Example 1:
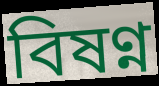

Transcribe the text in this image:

বিষণ্ন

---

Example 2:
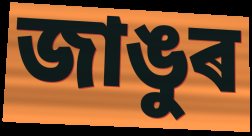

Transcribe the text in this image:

জাঙুৰ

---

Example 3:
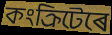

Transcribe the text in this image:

কংক্ৰিটেৰে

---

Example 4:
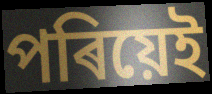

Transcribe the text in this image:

পৰিয়েই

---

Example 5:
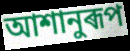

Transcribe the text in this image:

আশানুৰূপ